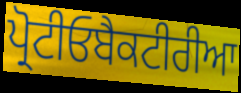
ਪ੍ਰੋਟੀਓਬੈਕਟੀਰੀਆ